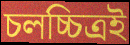
চলচ্চিত্ৰই